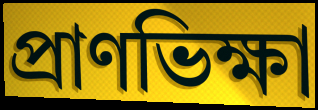
প্রাণভিক্ষা